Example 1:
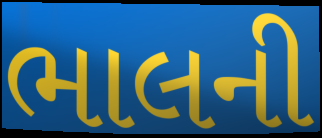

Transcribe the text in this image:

ભાલની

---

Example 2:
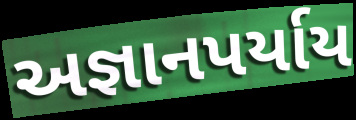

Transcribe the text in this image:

અજ્ઞાનપર્યાય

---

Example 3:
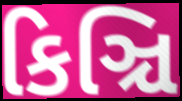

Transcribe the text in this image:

કિઞ્ચિ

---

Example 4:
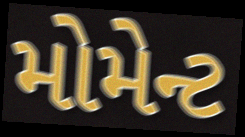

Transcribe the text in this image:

મોમેન્ટ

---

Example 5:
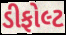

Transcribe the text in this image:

ડીફોલ્ટ